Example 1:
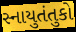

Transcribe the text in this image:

સ્નાયુતંતુકો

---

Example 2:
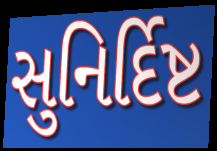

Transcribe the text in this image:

સુનિર્દિષ્ટ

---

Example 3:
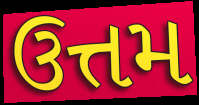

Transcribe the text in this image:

ઉત્તમ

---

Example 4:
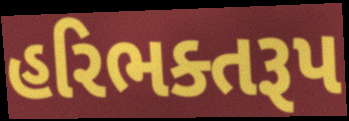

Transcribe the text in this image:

હરિભક્તરૂપ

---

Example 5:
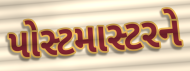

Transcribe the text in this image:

પોસ્ટમાસ્ટરને